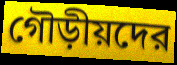
গৌড়ীয়দের